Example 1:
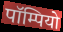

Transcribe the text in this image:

पॉम्पियो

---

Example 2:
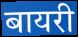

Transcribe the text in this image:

बायरी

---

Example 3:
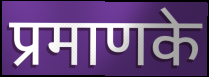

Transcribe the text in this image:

प्रमाणके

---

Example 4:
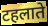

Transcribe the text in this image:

टहलाते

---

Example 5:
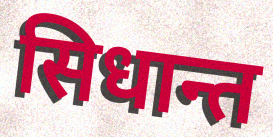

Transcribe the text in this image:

सिधान्त